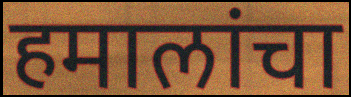
हमालांचा